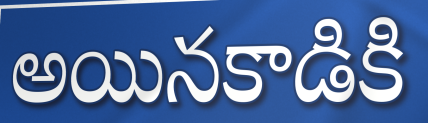
అయినకాడికి